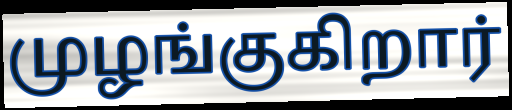
முழங்குகிறார்